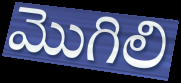
మొగిలి